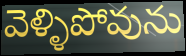
వెళ్ళిపోవును